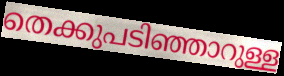
തെക്കുപടിഞ്ഞാറുള്ള